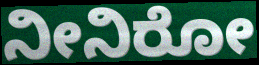
ನೀನಿರೋ